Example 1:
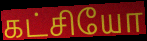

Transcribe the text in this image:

கட்சியோ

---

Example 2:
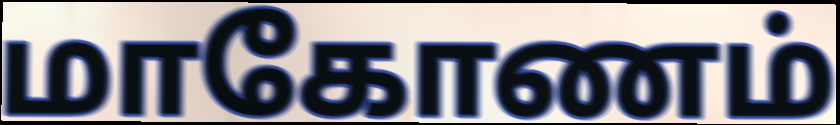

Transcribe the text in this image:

மாகோணம்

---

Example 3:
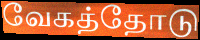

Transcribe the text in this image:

வேகத்தோடு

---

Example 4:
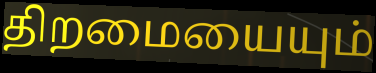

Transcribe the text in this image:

திறமையையும்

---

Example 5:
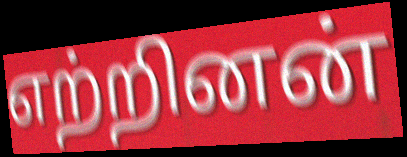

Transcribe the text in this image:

எற்றினன்